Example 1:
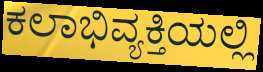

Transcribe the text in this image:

ಕಲಾಭಿವ್ಯಕ್ತಿಯಲ್ಲಿ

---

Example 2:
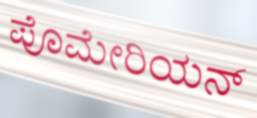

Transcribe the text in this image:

ಪೊಮೇರಿಯನ್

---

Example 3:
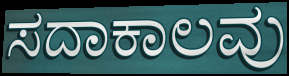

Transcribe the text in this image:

ಸದಾಕಾಲವು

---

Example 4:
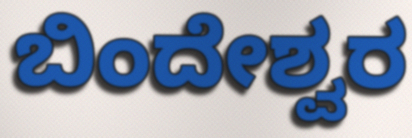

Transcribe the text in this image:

ಬಿಂದೇಶ್ವರ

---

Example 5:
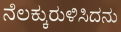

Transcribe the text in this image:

ನೆಲಕ್ಕುರುಳಿಸಿದನು